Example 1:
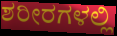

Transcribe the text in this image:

ಶರೀರಗಳಲ್ಲಿ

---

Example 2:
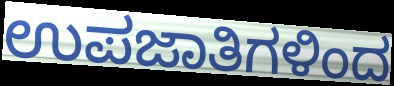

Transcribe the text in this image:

ಉಪಜಾತಿಗಳಿಂದ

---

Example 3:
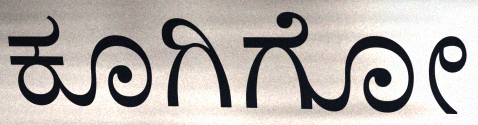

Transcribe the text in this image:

ಕೂಗಿಗೋ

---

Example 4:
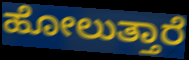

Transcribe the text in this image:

ಹೋಲುತ್ತಾರೆ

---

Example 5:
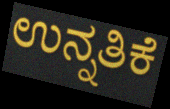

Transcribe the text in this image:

ಉನ್ನತಿಕೆ